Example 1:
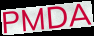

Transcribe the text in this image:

PMDA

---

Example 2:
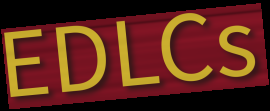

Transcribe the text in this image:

EDLCs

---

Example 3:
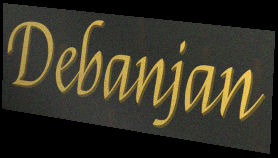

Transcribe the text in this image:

Debanjan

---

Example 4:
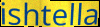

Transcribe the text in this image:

ishtella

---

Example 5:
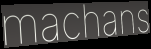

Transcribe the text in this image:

machans